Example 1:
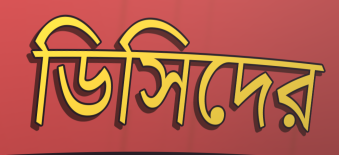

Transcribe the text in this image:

ডিসিদের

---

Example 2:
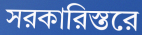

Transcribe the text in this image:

সরকারিস্তরে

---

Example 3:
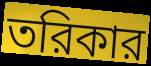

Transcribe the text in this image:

তরিকার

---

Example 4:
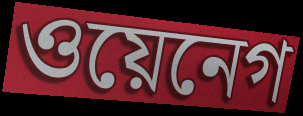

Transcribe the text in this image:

ওয়েনেগ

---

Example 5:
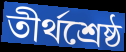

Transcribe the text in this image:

তীর্থশ্রেষ্ঠ